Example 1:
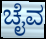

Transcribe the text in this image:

ಚೈವ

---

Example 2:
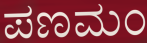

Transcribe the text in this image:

ಪಣಮಂ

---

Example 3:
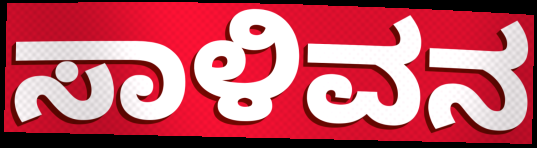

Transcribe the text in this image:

ಸಾಳಿವನ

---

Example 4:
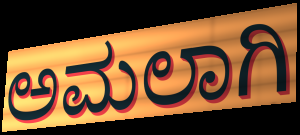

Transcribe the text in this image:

ಅಮಲಾಗಿ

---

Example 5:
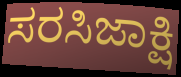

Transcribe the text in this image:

ಸರಸಿಜಾಕ್ಷಿ